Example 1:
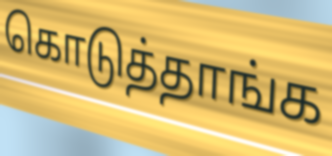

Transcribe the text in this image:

கொடுத்தாங்க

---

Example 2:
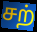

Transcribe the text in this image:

சற்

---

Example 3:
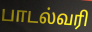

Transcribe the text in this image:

பாடல்வரி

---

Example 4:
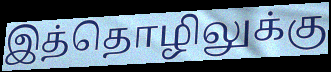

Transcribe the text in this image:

இத்தொழிலுக்கு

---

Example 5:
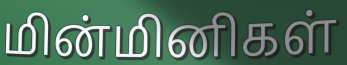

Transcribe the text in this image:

மின்மினிகள்